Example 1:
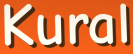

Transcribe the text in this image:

Kural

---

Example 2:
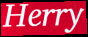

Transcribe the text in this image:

Herry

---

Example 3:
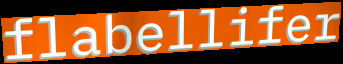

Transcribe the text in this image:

flabellifer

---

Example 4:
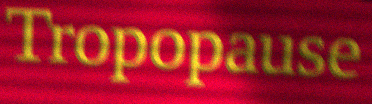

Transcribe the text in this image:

Tropopause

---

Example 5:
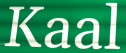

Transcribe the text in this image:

Kaal